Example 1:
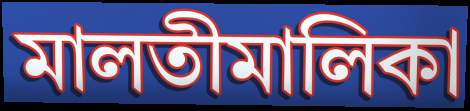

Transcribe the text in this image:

মালতীমালিকা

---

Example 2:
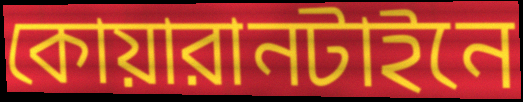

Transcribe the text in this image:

কোয়ারানটাইনে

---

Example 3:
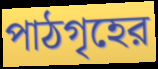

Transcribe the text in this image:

পাঠগৃহের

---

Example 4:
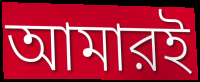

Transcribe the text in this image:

আমারই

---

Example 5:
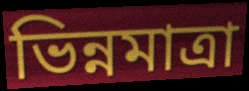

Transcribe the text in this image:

ভিন্নমাত্রা